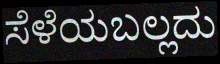
ಸೆಳೆಯಬಲ್ಲದು